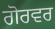
ਗੋਰਵਰ